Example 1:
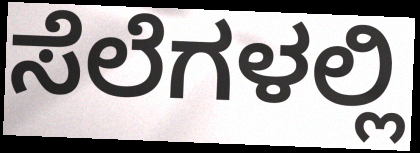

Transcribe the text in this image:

ಸೆಲೆಗಳಲ್ಲಿ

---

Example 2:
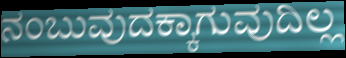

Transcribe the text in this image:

ನಂಬುವುದಕ್ಕಾಗುವುದಿಲ್ಲ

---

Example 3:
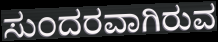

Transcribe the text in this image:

ಸುಂದರವಾಗಿರುವ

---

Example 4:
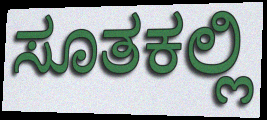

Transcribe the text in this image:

ಸೂತಕಲ್ಲಿ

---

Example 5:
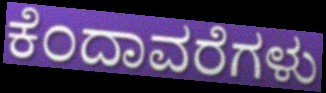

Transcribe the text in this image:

ಕೆಂದಾವರೆಗಳು